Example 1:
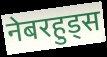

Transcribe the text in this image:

नेबरहुड्स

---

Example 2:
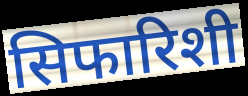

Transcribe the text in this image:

सिफारिशी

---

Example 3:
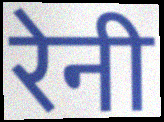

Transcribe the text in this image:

रेनी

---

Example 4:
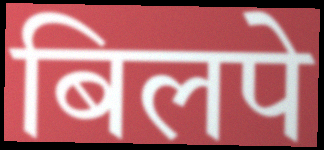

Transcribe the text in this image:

बिलपे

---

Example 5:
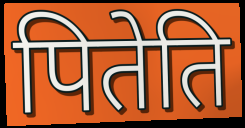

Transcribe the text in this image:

पितेति